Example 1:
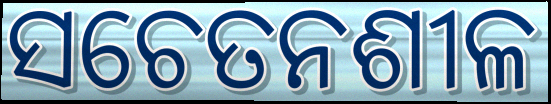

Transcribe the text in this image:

ସଚେତନଶୀଳ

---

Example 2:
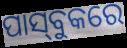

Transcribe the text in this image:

ପାସ୍‌ବୁକରେ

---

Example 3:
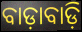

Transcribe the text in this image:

ବାଡ଼ାବାଡ଼ି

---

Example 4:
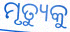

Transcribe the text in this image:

ମୃତ୍ୟୁକୁ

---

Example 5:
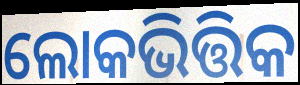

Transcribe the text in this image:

ଲୋକଭିତ୍ତିକ